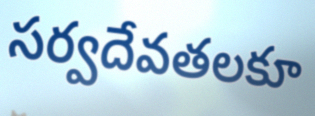
సర్వదేవతలకూ